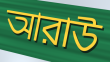
আরাউ